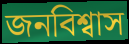
জনবিশ্বাস